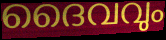
ദൈവവും